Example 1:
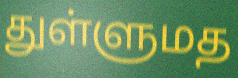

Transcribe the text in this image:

துள்ளுமத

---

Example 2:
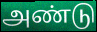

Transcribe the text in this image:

அண்டு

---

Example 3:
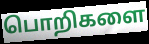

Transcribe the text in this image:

பொறிகளை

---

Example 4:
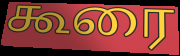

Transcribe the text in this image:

கூரை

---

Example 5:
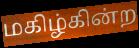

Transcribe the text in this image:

மகிழ்கின்ற